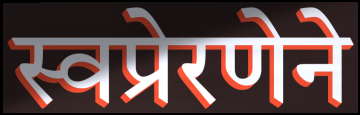
स्वप्रेरणेने